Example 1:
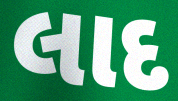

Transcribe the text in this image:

લાદ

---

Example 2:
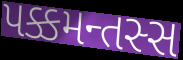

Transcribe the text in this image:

પક્કમન્તસ્સ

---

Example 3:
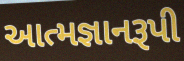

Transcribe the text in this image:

આત્મજ્ઞાનરૂપી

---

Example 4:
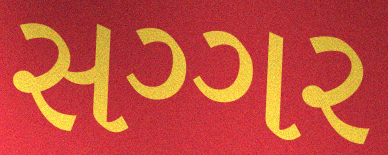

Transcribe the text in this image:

સગ્ગર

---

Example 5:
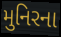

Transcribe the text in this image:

મુનિરના